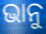
ଭାନୁ